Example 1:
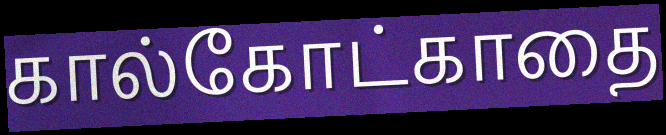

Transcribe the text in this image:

கால்கோட்காதை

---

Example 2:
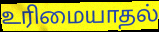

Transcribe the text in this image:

உரிமையாதல்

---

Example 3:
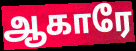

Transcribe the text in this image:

ஆகாரே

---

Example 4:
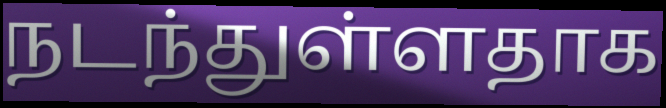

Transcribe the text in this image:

நடந்துள்ளதாக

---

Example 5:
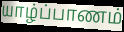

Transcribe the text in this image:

யாழ்ப்பாணம்